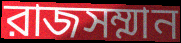
রাজসম্মান